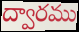
ద్వారము